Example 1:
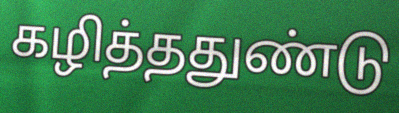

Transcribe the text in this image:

கழித்ததுண்டு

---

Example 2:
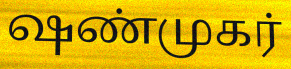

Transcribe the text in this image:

ஷண்முகர்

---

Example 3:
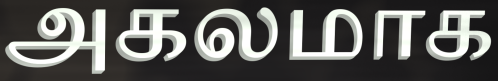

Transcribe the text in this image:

அகலமாக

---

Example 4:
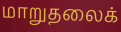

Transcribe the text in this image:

மாறுதலைக்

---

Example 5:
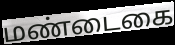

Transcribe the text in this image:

மண்டைகை